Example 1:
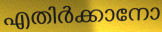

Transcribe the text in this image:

എതിർക്കാനോ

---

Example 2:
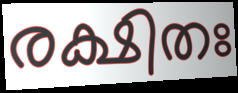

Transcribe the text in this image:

രക്ഷിതഃ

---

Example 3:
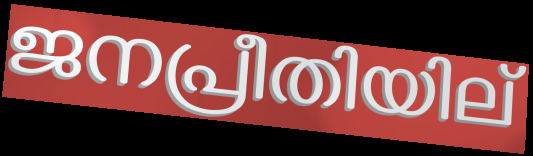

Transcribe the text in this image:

ജനപ്രീതിയില്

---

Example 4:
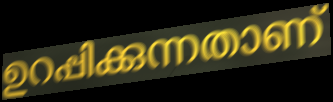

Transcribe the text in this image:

ഉറപ്പിക്കുന്നതാണ്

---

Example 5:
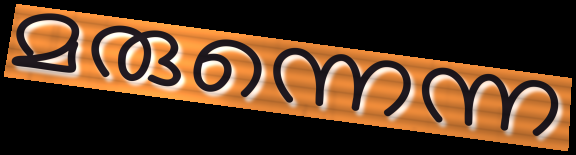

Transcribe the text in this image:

മരുന്നെന്ന